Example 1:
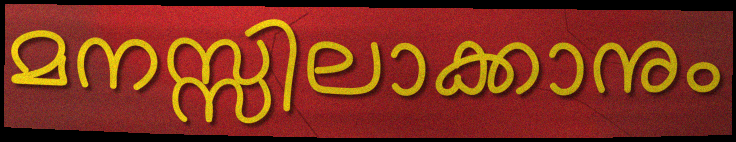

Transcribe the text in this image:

മനസ്സിലാക്കാനും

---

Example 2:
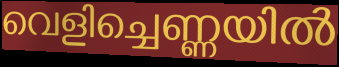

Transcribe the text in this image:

വെളിച്ചെണ്ണയിൽ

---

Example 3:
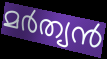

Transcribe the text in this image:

മർത്യൻ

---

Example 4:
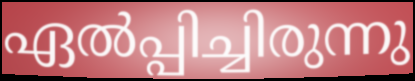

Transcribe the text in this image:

ഏൽപ്പിച്ചിരുന്നു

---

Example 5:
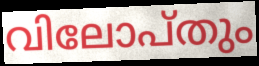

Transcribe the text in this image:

വിലോപ്തും